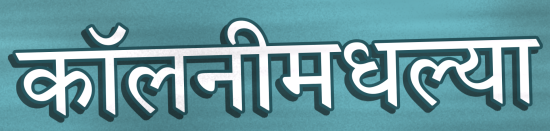
कॉलनीमधल्या